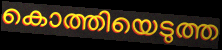
കൊത്തിയെടുത്ത